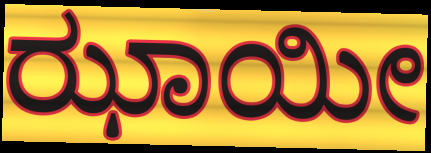
ಝಾಯೀ